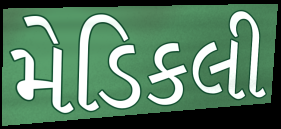
મેડિકલી